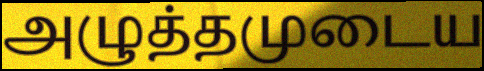
அழுத்தமுடைய